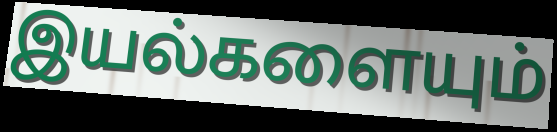
இயல்களையும்